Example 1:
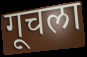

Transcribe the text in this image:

गूचला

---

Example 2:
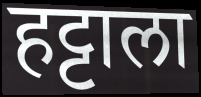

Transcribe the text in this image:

हट्टाला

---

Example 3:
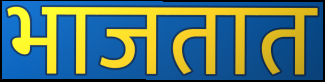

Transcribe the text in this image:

भाजतात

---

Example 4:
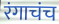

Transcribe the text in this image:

रंगाचंच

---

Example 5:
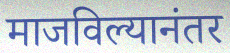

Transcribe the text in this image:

माजविल्यानंतर